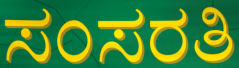
ಸಂಸರತಿ